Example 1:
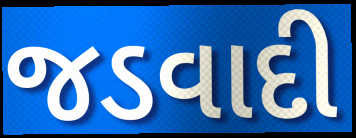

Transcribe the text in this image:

જડવાદી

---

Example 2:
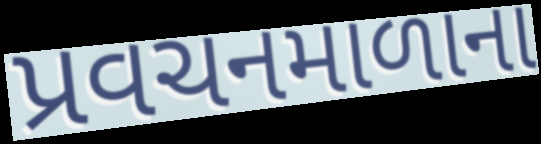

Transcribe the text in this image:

પ્રવચનમાળાના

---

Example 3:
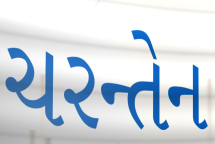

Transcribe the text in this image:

ચરન્તેન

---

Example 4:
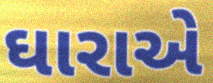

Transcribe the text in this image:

ઘારાએ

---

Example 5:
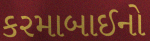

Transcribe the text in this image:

કરમાબાઈનો